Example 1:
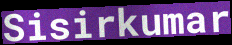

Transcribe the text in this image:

Sisirkumar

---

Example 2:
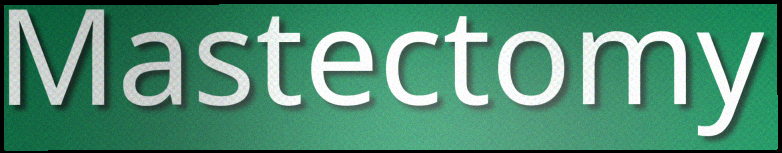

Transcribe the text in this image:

Mastectomy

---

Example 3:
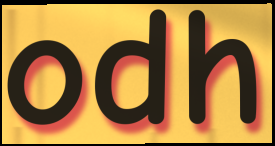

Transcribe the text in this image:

odh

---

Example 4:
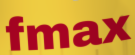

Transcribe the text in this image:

fmax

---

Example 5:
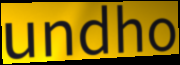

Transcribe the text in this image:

undho